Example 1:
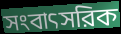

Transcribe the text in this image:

সংবাৎসরিক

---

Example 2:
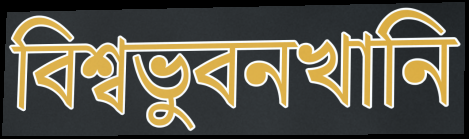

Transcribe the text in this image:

বিশ্বভুবনখানি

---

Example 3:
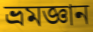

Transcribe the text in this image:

ভ্রমজ্ঞান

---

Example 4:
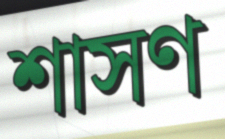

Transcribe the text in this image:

শাসণ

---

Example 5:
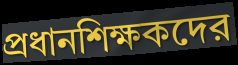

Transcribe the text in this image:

প্রধানশিক্ষকদের